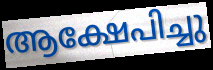
ആക്ഷേപിച്ചു